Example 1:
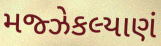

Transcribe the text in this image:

મજ્ઝેકલ્યાણં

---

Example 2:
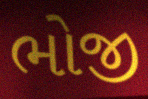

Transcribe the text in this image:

ભોજી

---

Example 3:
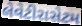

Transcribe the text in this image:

લેવેટીરાસેટમ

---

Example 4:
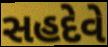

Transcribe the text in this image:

સહદેવે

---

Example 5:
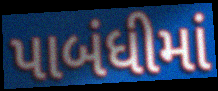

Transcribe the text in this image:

પાબંધીમાં